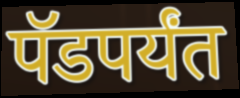
पॅडपर्यंत